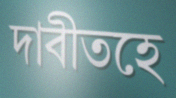
দাবীতহে